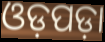
ଓଡ଼ପଡ଼ା